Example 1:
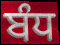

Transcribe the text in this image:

ਬੰਧ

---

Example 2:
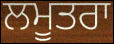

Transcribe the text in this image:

ਲਮੂਤਰਾ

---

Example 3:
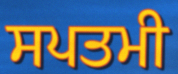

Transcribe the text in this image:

ਸਪਤਮੀ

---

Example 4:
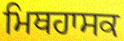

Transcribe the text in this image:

ਮਿਥਹਾਸਕ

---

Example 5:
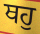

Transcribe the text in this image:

ਥਹੁ